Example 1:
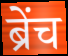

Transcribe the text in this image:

ब्रेंच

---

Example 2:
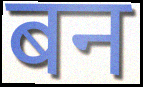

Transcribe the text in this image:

बन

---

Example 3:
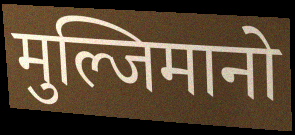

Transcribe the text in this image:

मुल्जिमानो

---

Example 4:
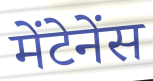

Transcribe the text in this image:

मेंटेनेंस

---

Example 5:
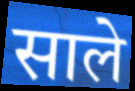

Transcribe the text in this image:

साले